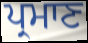
ਪ੍ਰਮਾਣ